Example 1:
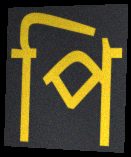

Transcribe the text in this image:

পি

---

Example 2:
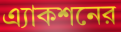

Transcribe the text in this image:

এ্যাকশনের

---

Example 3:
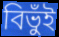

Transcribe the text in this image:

বিভুঁই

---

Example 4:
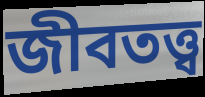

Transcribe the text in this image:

জীবতত্ত্ব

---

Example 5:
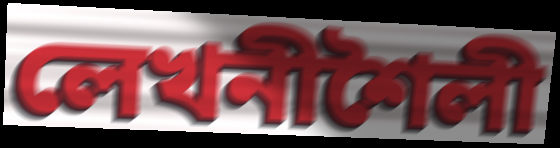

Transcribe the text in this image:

লেখনীশৈলী